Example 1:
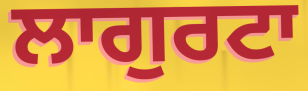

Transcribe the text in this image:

ਲਾਗੁਰਟਾ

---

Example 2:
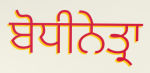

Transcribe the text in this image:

ਬੋਧੀਨੇਤ੍ਰਾ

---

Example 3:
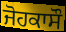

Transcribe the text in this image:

ਜੋਹਕਾਸੌ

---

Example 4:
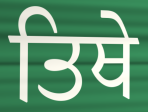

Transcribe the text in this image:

ਤਿਥੇ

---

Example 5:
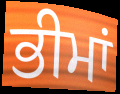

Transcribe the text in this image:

ਭੀਮਾਂ